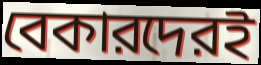
বেকারদেরই